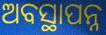
ଅବସ୍ଥାପନ୍ନ